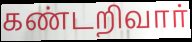
கண்டறிவார்